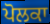
ਪੋਲਕਾ